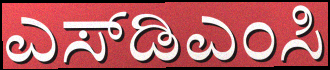
ಎಸ್‌ಡಿಎಂಸಿ